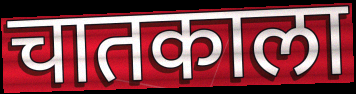
चातकाला